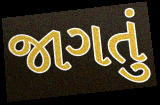
જાગતું